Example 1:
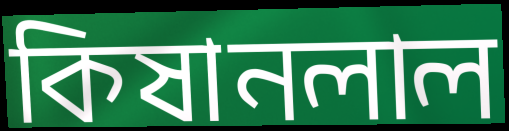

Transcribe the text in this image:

কিষানলাল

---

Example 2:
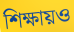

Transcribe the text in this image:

শিক্ষায়ও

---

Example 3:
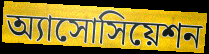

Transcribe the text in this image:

অ্যাসোসিয়েশন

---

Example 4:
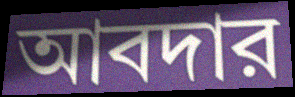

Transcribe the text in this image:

আবদার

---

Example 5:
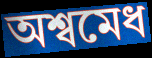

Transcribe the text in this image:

অশ্বমেধ